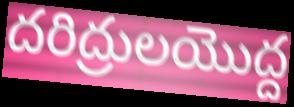
దరిద్రులయొద్ద